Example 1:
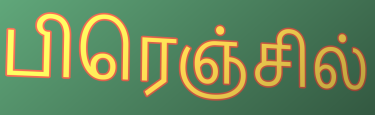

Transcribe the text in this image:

பிரெஞ்சில்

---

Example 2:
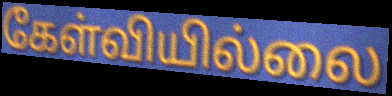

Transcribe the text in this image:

கேள்வியில்லை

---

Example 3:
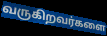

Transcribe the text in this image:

வருகிறவர்களை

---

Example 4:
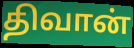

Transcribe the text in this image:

திவான்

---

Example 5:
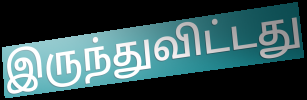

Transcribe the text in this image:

இருந்துவிட்டது